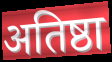
अतिष्ठा